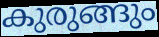
കുരുങ്ങും